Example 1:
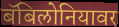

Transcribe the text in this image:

बॅबिलोनियावर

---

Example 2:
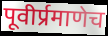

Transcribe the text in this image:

पूवीर्प्रमाणेच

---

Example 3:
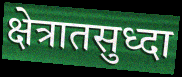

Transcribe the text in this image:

क्षेत्रातसुध्दा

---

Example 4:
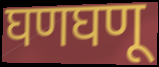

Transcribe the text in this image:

घणघणू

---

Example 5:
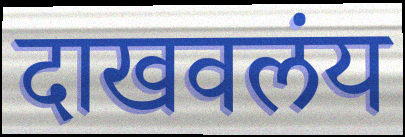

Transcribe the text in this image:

दाखवलंय